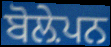
ਬੋਲ਼ੇਪਨ